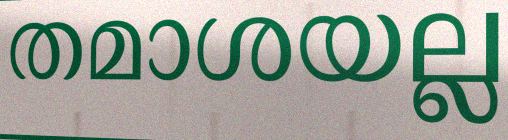
തമാശയല്ല